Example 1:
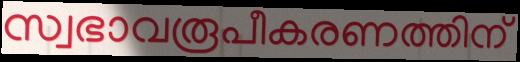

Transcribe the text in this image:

സ്വഭാവരൂപീകരണത്തിന്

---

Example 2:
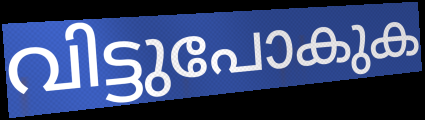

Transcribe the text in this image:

വിട്ടുപോകുക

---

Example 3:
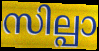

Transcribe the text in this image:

സില്പാ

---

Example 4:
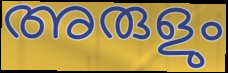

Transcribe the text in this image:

അരുളും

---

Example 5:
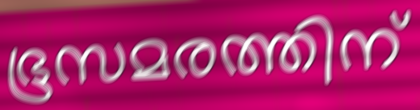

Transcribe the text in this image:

ഭൂസമരത്തിന്